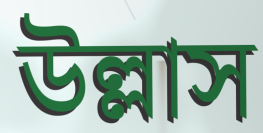
উল্লাস